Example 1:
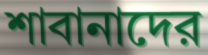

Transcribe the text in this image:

শাবানাদের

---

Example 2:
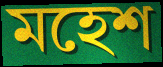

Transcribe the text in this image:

মহেশ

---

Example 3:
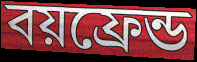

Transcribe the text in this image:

বয়ফ্রেন্ড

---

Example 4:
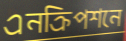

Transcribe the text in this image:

এনক্রিপশনে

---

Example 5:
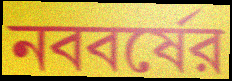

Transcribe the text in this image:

নববর্ষের